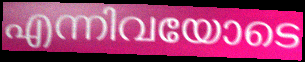
എന്നിവയോടെ